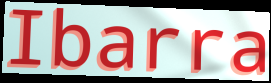
Ibarra